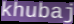
khubaj